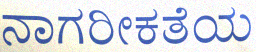
ನಾಗರೀಕತೆಯ